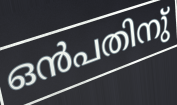
ഒൻപതിനു്